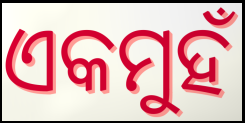
ଏକମୁହଁ